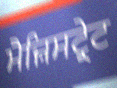
ਮੈਜ਼ਿਸਟ੍ਰੇਟ